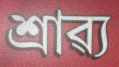
শ্ৰাৱ্য